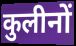
कुलीनों